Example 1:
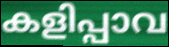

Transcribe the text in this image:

കളിപ്പാവ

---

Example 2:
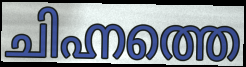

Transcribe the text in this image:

ചിഹ്നത്തെ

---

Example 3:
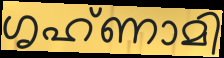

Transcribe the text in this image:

ഗൃഹ്ണാമി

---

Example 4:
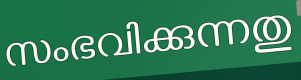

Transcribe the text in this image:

സംഭവിക്കുന്നതു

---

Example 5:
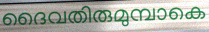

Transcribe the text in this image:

ദൈവതിരുമുമ്പാകെ